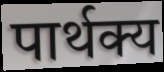
पार्थक्य